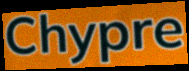
Chypre